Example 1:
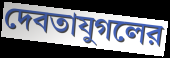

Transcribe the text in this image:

দেবতাযুগলের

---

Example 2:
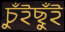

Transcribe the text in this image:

চুঁইছুঁই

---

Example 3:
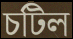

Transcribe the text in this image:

চটিল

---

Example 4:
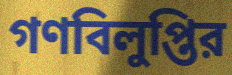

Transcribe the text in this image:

গণবিলুপ্তির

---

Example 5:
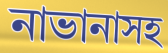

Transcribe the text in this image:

নাভানাসহ